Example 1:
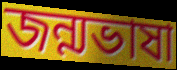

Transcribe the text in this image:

জন্মভাষা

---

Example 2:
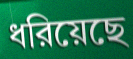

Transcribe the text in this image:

ধরিয়েছে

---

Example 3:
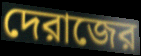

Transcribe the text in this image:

দেরাজের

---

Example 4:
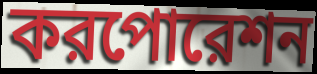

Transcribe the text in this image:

করপোরেশন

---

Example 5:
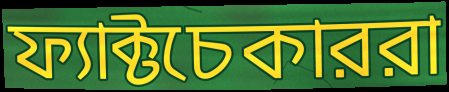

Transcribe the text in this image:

ফ্যাক্টচেকাররা